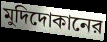
মুদিদোকানের